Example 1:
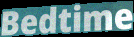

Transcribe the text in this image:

Bedtime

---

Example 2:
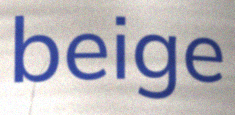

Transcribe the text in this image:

beige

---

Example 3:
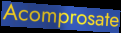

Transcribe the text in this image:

Acomprosate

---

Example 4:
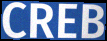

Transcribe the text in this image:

CREB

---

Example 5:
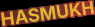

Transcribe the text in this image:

HASMUKH